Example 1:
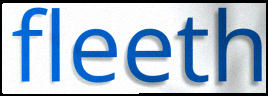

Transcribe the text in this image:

fleeth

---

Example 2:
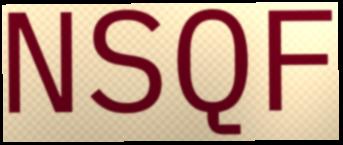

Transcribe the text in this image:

NSQF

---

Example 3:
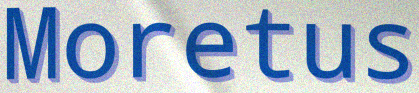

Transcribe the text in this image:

Moretus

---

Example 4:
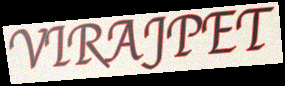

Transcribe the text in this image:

VIRAJPET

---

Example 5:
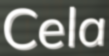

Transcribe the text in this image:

Cela